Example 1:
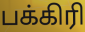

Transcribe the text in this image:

பக்கிரி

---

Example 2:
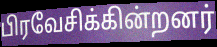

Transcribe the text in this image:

பிரவேசிக்கின்றனர்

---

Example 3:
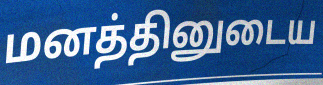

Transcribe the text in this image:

மனத்தினுடைய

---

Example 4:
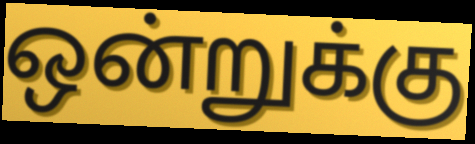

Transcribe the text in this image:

ஒன்றுக்கு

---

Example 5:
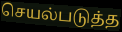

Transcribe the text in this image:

செயல்படுத்த